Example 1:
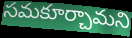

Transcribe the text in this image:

సమకూర్చామని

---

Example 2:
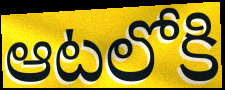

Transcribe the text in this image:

ఆటలోకి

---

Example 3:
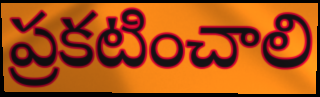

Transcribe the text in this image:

ప్రకటించాలి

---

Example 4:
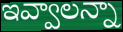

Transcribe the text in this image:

ఇవ్వాలన్నా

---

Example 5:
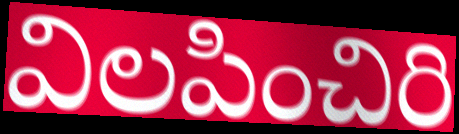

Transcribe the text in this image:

విలపించిరి